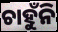
ଚାହୁଁନି